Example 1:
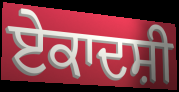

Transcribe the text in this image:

ਏਕਾਦਸ਼ੀ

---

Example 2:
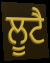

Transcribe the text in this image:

ਲੂਟੈ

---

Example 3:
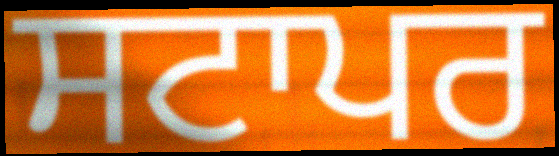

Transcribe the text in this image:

ਸਟਾਪਰ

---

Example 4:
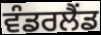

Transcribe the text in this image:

ਵੰਡਰਲੈਂਡ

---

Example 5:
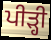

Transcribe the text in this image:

ਪੀੜ੍ਹੀ